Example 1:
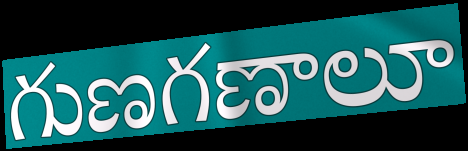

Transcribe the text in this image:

గుణగణాలూ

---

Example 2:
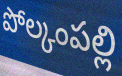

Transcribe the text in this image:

పోల్కంపల్లి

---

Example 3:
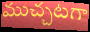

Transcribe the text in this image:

ముచ్చటగా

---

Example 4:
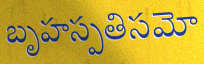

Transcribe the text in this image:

బృహస్పతిసమో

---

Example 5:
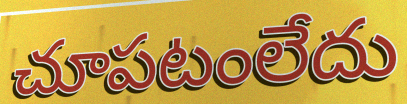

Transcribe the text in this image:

చూపటంలేదు